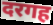
दरगह